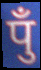
पुँ